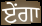
ਏਂਗਾ